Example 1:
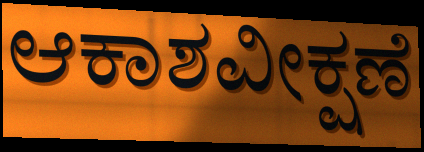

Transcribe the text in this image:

ಆಕಾಶವೀಕ್ಷಣೆ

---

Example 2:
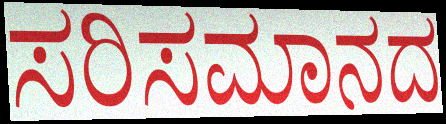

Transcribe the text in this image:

ಸರಿಸಮಾನದ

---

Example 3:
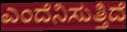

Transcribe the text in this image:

ಎಂದೆನಿಸುತ್ತಿದೆ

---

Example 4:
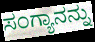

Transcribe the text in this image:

ಸಂಗ್ಯಾನನ್ನು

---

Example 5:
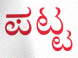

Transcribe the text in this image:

ಪಟ್ಟ